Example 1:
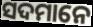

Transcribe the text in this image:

ସଦମାନେ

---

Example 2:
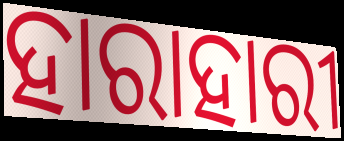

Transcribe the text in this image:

ହାରାହାରୀ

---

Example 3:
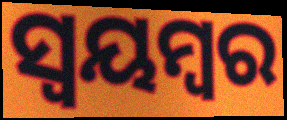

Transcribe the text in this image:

ସ୍ଵୟମ୍ବର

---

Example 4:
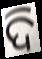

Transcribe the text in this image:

ଦି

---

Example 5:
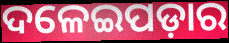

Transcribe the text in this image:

ଦଳେଇପଡ଼ାର